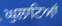
ਘੁਲਾਟਿਆਂ